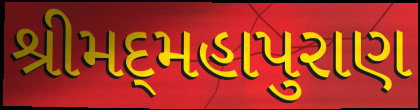
શ્રીમદ્‌મહાપુરાણ